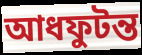
আধফুটন্ত